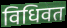
विधिवत